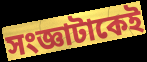
সংজ্ঞাটাকেই